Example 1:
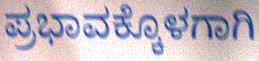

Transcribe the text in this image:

ಪ್ರಭಾವಕ್ಕೊಳಗಾಗಿ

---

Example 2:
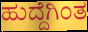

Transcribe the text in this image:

ಹುದ್ದೆಗಿಂತ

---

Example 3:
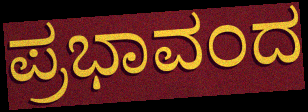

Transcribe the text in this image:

ಪ್ರಭಾವಂದ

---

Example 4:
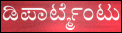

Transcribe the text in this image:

ಡಿಪಾರ್ಟ್ಮೆಂಟು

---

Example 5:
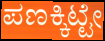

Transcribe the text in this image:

ಪಣಕ್ಕಿಟ್ಟೇ